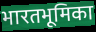
भारतभूमिका